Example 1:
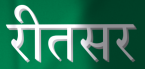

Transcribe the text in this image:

रीतसर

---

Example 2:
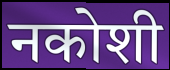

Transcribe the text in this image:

नकोशी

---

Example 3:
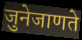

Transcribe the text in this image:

जुनेजाणते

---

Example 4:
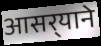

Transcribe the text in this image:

आसर्‍याने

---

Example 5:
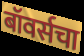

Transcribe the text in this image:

बॉवर्सचा